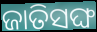
ଜାତିସଙ୍ଘ